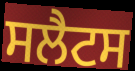
ਸਲੈਟਸ